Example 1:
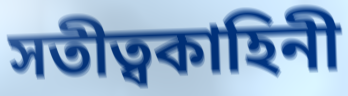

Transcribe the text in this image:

সতীত্বকাহিনী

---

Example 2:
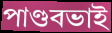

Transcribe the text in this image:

পাণ্ডবভাই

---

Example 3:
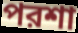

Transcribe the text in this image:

পরশা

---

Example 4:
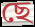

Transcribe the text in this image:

ছে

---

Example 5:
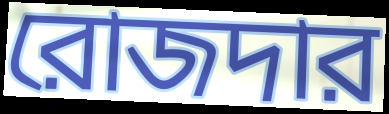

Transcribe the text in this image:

রোজদার